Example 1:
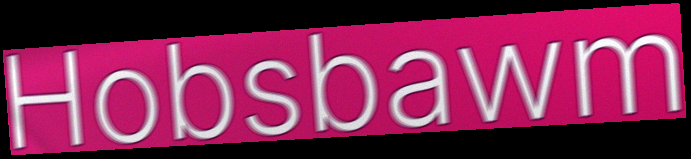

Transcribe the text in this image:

Hobsbawm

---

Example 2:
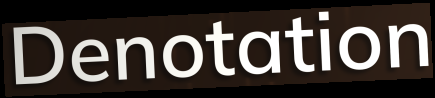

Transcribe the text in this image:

Denotation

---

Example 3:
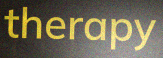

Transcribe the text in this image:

therapy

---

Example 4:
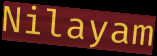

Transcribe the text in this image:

Nilayam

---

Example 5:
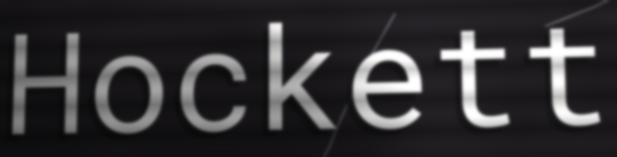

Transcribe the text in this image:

Hockett